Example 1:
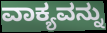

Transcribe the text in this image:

ವಾಕ್ಯವನ್ನು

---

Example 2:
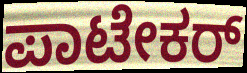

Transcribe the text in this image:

ಪಾಟೇಕರ್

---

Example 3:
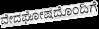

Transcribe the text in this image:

ವೇದಘೋಷದೊಂದಿಗೆ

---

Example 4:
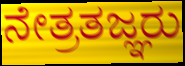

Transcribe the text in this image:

ನೇತ್ರತಜ್ಞರು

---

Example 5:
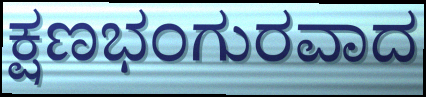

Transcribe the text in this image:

ಕ್ಷಣಭಂಗುರವಾದ